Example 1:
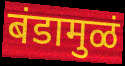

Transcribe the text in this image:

बंडामुळं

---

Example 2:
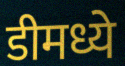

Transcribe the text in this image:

डीमध्ये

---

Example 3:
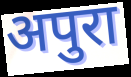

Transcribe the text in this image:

अपुरा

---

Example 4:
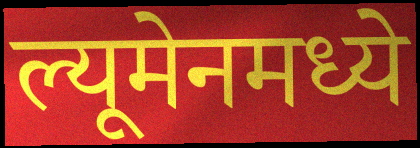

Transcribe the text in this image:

ल्यूमेनमध्ये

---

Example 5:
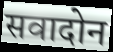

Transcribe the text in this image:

सवादोन